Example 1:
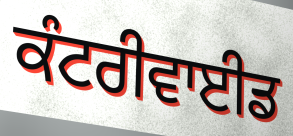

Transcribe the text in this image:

ਕੰਟਰੀਵਾਈਡ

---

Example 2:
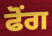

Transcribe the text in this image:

ਫੋਂਗ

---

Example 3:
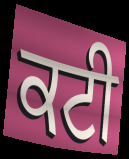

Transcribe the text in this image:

ਕਟੀ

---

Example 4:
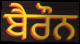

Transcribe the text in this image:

ਬੈਰੌਨ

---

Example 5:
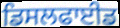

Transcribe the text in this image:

ਡਿਸਲਫਾਈਡ